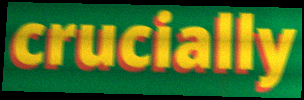
crucially